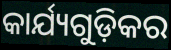
କାର୍ଯ୍ୟଗୁଡ଼ିକର